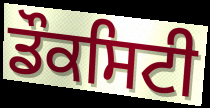
ਡੌਕਸਿਟੀ